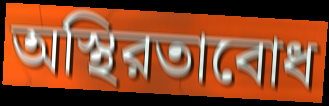
অস্থিরতাবোধ